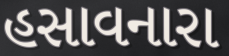
હસાવનારા